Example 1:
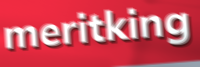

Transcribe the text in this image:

meritking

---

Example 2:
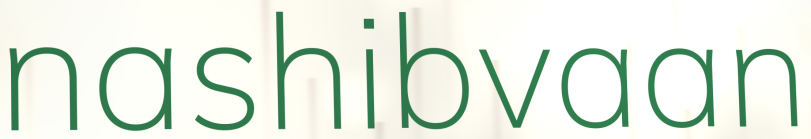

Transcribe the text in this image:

nashibvaan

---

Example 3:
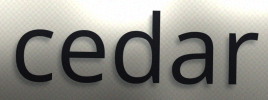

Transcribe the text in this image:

cedar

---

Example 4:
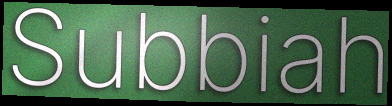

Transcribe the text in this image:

Subbiah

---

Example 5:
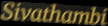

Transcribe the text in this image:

Sivathambi